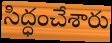
సిద్ధంచేశారు